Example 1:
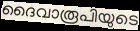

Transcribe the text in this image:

ദൈവാരൂപിയുടെ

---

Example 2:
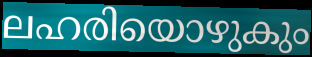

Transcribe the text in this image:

ലഹരിയൊഴുകും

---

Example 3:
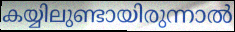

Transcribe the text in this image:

കയ്യിലുണ്ടായിരുന്നാൽ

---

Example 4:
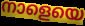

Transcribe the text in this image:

നാളെയെ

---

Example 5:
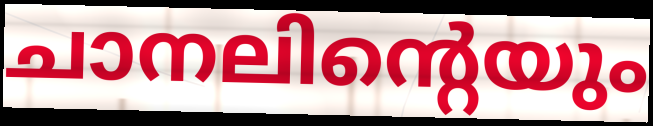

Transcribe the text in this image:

ചാനലിന്റെയും